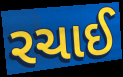
રચાઈ